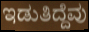
ಇಡುತಿದ್ದೆವು